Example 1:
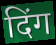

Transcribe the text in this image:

दिंग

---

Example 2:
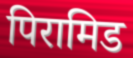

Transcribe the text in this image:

पिरामिड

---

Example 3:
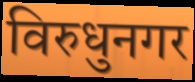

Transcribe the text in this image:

विरुधुनगर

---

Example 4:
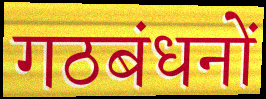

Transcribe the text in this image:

गठबंधनों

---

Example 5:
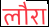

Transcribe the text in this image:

लौरा